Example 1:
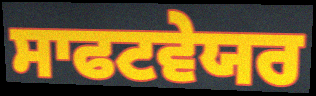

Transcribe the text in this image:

ਸਾਫਟਵੇਯਰ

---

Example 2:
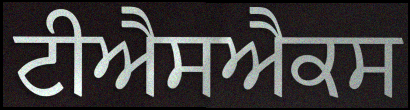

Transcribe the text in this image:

ਟੀਐਸਐਕਸ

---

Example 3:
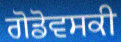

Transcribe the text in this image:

ਗੋਡੋਵਸਕੀ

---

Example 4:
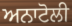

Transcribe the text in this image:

ਅਨਾਟੋਲੀ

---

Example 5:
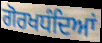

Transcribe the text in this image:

ਗੋਰਖਧੰਦਿਆਂ